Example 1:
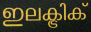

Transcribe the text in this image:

ഇലക്ട്രിക്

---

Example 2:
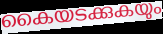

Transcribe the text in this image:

കൈയടക്കുകയും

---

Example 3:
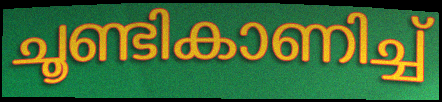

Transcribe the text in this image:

ചൂണ്ടികാണിച്ച്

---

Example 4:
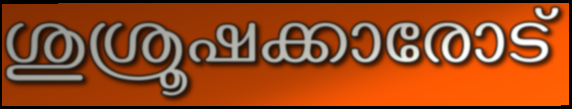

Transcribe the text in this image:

ശുശ്രൂഷക്കാരോട്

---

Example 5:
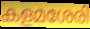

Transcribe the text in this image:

കളമശേരി